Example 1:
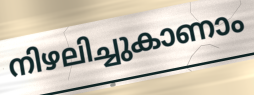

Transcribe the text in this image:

നിഴലിച്ചുകാണാം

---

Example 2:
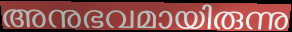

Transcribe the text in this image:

അനുഭവമായിരുന്നു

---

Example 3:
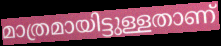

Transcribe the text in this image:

മാത്രമായിട്ടുള്ളതാണ്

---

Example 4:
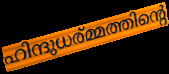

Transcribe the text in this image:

ഹിന്ദുധര്മ്മത്തിന്റെ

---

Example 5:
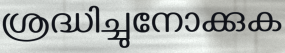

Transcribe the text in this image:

ശ്രദ്ധിച്ചുനോക്കുക